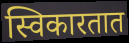
स्विकारतात